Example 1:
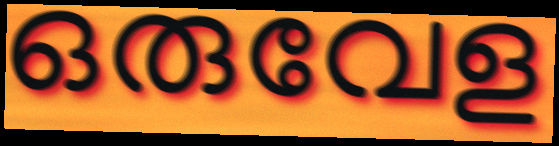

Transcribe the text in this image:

ഒരുവേള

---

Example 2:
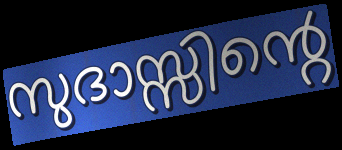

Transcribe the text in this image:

സുദാസ്സിന്റെ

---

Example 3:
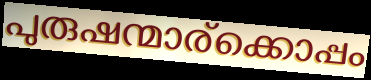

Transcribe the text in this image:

പുരുഷന്മാര്ക്കൊപ്പം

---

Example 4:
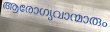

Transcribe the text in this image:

ആരോഗ്യവാന്മാരും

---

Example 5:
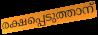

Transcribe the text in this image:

രക്ഷപ്പെടുത്താന്